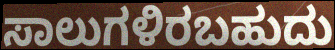
ಸಾಲುಗಳಿರಬಹುದು